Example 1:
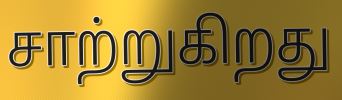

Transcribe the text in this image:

சாற்றுகிறது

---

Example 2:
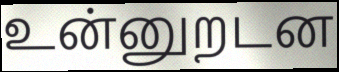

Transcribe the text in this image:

உன்னுறடன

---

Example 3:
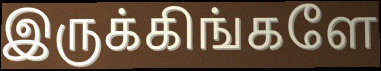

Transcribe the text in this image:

இருக்கிங்களே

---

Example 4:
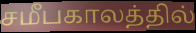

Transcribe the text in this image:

சமீபகாலத்தில்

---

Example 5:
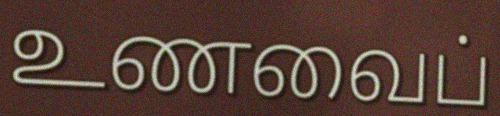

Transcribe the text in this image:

உணவைப்